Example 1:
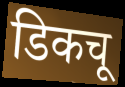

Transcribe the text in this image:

डिकचू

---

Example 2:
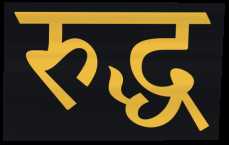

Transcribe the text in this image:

रुद्ध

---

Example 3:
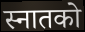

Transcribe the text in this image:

स्नातको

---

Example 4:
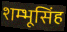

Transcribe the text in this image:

शम्भूसिंह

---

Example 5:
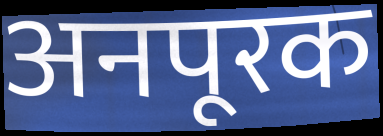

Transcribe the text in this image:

अनपूरक